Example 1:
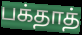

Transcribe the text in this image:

பக்தாத்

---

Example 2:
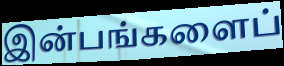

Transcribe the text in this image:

இன்பங்களைப்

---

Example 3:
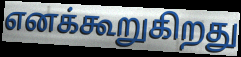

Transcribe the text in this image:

எனக்கூறுகிறது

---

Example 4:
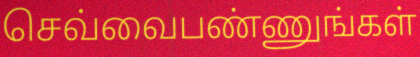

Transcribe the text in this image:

செவ்வைபண்ணுங்கள்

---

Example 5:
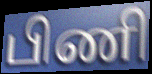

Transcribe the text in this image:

பிணி